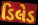
ડિલેડ